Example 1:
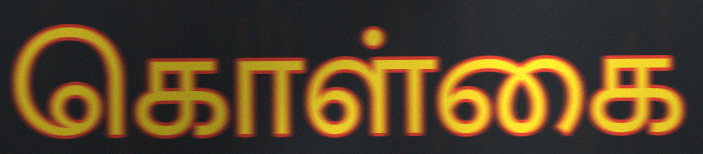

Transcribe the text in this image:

கொள்கை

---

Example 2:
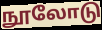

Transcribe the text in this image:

நூலோடு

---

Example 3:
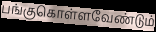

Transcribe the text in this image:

பங்குகொள்ளவேண்டும்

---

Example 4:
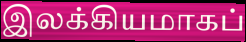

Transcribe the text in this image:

இலக்கியமாகப்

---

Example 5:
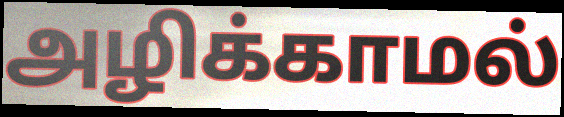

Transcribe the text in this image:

அழிக்காமல்